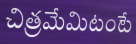
చిత్రమేమిటంటే